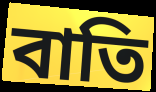
বাতি